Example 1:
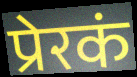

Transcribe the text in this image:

प्रेरकं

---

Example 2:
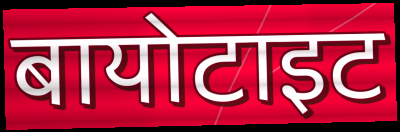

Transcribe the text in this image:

बायोटाइट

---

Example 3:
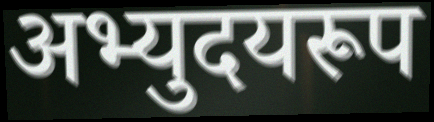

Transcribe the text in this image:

अभ्युदयरूप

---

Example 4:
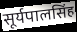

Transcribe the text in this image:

सूर्यपालसिंह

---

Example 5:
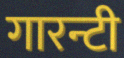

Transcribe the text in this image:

गारन्टी